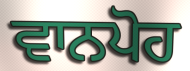
ਵਾਨਪੋਹ